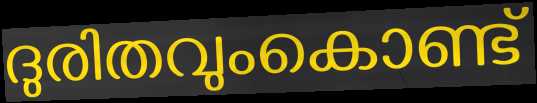
ദുരിതവുംകൊണ്ട്